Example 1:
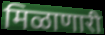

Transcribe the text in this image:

मिळाणारी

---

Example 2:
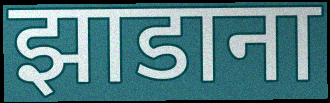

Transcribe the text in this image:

झाडाना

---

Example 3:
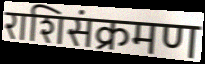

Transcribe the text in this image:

राशिसंक्रमण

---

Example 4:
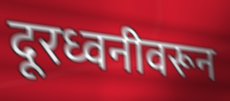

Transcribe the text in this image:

दूरध्वनीवरून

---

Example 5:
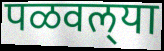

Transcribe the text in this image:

पळवल्या